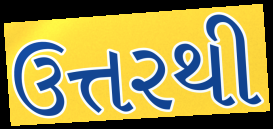
ઉત્તરથી